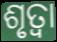
ଶୃତ୍ୱା